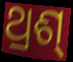
ଥ୍ରଶ୍